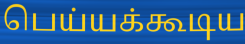
பெய்யக்கூடிய